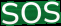
SOS